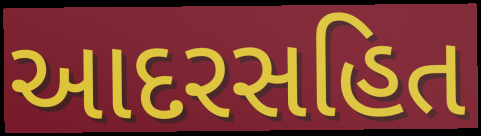
આદરસહિત